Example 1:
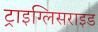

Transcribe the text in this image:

ट्राइग्लिसराइड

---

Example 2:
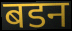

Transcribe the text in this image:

बडन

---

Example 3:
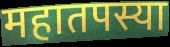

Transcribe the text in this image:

महातपस्या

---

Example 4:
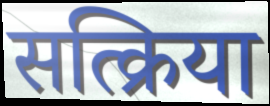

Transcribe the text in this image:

सत्क्रिया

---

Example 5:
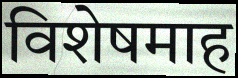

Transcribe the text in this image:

विशेषमाह